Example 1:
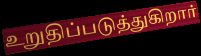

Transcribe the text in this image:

உறுதிப்படுத்துகிறார்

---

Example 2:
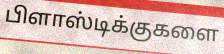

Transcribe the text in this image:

பிளாஸ்டிக்குகளை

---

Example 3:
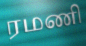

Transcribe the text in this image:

ரமணி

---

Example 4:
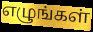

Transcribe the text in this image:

எழுங்கள்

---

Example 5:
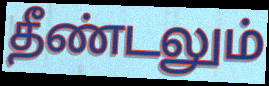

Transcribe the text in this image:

தீண்டலும்